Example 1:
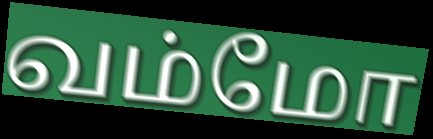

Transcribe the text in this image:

வம்மோ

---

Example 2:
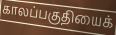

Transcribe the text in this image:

காலப்பகுதியைக்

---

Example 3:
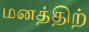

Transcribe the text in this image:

மனத்திற்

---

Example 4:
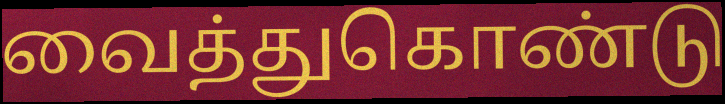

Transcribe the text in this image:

வைத்துகொண்டு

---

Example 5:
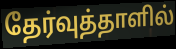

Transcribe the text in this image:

தேர்வுத்தாளில்